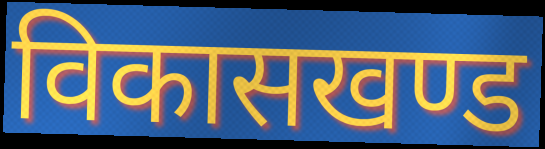
विकासखण्ड